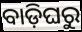
ବାଡ଼ିଘରୁ